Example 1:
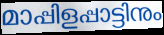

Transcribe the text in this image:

മാപ്പിളപ്പാട്ടിനും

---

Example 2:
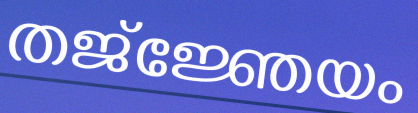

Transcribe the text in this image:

തജ്ജ്ഞേയം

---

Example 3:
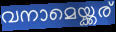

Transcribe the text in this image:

വനാമെയ്ക്കര്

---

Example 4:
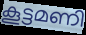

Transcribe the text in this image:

കൂട്ടമണി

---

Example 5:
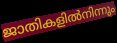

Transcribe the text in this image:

ജാതികളിൽനിന്നും